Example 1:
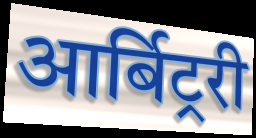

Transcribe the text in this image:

आर्बिट्ररी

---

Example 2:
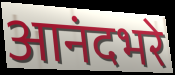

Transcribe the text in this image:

आनंदभरे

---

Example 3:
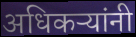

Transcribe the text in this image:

अधिकऱ्यांनी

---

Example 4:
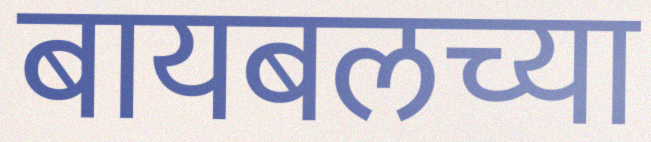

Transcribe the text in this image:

बायबलच्या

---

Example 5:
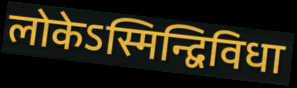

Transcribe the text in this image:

लोकेऽस्मिन्द्विविधा